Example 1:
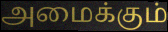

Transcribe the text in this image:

அமைக்கும்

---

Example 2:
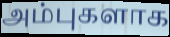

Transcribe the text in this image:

அம்புகளாக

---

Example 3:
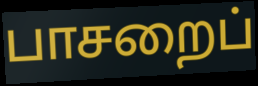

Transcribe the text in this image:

பாசறைப்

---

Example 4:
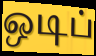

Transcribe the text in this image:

ஒடிப்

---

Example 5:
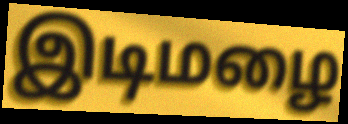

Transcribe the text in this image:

இடிமழை